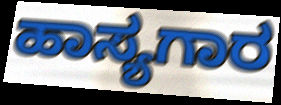
ಹಾಸ್ಯಗಾರ